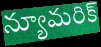
న్యూమరిక్